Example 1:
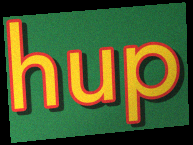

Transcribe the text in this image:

hup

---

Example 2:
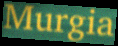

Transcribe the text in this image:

Murgia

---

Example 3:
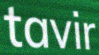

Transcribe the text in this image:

tavir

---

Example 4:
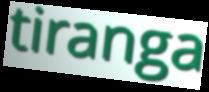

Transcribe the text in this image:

tiranga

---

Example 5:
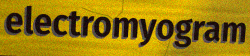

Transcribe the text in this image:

electromyogram